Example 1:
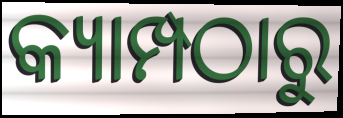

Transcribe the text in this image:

କ୍ୟାମ୍ପଠାରୁ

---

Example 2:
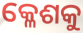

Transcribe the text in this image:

କ୍ଳେଶକୁ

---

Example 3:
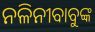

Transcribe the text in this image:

ନଳିନୀବାବୁଙ୍କ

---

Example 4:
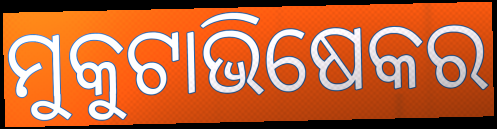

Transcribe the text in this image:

ମୁକୁଟାଭିଷେକର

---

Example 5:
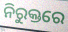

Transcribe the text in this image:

ନିରୁକ୍ତରେ